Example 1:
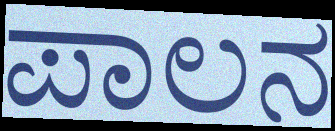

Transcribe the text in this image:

ಪಾಲನ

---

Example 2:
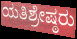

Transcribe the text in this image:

ಯತಿಶ್ರೇಷ್ಠರು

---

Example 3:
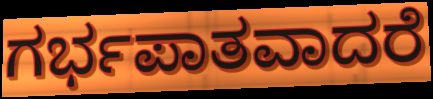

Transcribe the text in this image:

ಗರ್ಭಪಾತವಾದರೆ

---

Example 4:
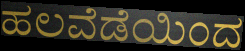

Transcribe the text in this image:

ಹಲವೆಡೆಯಿಂದ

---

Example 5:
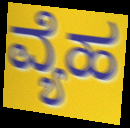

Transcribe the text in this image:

ವ್ಯೆಹ